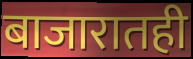
बाजारातही